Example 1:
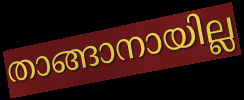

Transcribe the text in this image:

താങ്ങാനായില്ല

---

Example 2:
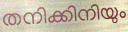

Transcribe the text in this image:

തനിക്കിനിയും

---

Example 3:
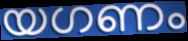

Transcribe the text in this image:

യഗണം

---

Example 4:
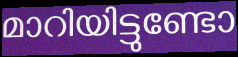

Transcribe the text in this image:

മാറിയിട്ടുണ്ടോ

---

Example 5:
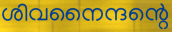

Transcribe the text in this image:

ശിവനൈന്ദന്റെ